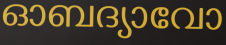
ഓബദ്യാവോ